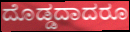
ದೊಡ್ಡದಾದರೂ